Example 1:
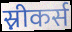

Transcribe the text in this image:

स्नीकर्स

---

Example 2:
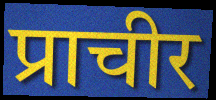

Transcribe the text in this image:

प्राचीर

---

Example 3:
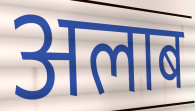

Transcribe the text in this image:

अलाब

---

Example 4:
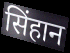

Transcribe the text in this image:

सिंहान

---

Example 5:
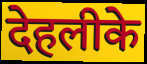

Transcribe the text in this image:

देहलीके